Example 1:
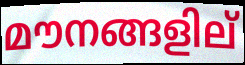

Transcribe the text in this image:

മൗനങ്ങളില്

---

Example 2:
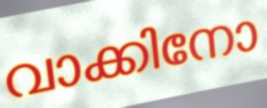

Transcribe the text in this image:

വാക്കിനോ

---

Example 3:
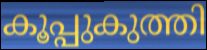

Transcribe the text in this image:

കൂപ്പുകുത്തി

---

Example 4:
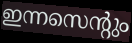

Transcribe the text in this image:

ഇന്നസെന്റും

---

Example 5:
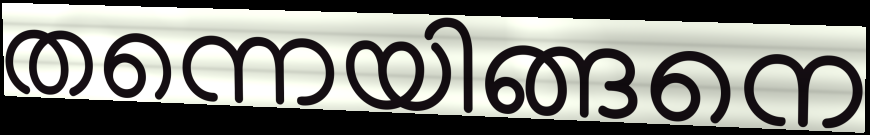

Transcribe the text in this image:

തന്നെയിങ്ങനെ